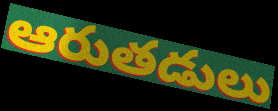
ఆరుతడులు